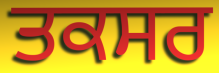
ਤਕਸਰ